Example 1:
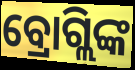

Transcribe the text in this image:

ବ୍ରୋଗ୍ଲିଙ୍କ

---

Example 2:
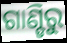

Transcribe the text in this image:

ଗାଣ୍ଡିରୁ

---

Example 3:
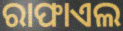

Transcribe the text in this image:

ରାଫାଏଲ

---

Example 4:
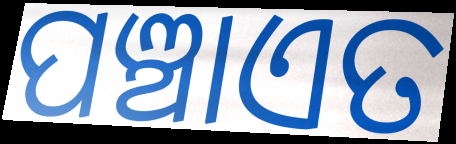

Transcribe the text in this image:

ପଞ୍ଚାଏତ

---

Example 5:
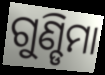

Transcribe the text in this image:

ଗୁଣ୍ଡିମା